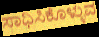
ಸಾಧಿಸಿಕೊಳ್ಳುವ